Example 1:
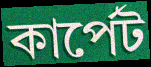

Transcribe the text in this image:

কার্পেট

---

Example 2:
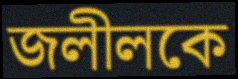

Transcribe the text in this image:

জলীলকে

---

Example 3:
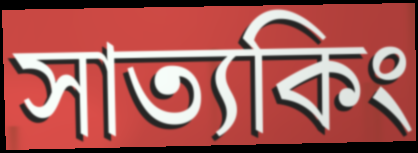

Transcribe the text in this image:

সাত্যকিং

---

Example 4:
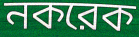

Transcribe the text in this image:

নকরেক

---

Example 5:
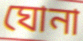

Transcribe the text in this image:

ঘোনা